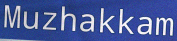
Muzhakkam